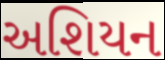
અશિયન